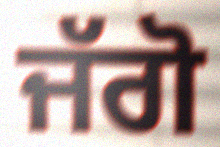
ਜੱਗੋ